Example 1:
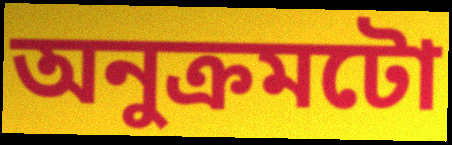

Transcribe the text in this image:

অনুক্ৰমটো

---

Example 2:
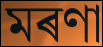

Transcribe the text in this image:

মৰণা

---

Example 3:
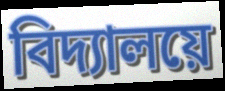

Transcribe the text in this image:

বিদ্যালয়ে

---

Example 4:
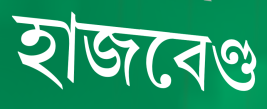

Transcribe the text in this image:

হাজবেণ্ড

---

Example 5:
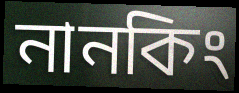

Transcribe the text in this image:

নানকিং